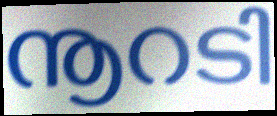
നൂറടി